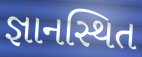
જ્ઞાનસ્થિત